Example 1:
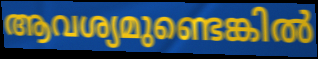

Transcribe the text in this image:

ആവശ്യമുണ്ടെങ്കിൽ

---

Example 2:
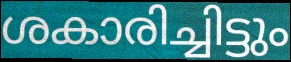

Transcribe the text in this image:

ശകാരിച്ചിട്ടും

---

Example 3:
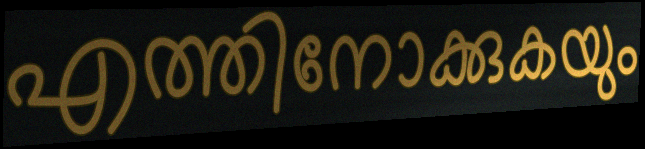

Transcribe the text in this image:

എത്തിനോക്കുകയും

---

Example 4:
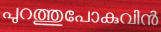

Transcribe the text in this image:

പുറത്തുപോകുവിൻ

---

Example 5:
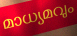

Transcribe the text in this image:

മാധ്യമവും